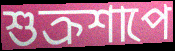
শুক্রশাপে